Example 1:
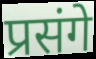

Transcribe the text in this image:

प्रसंगे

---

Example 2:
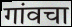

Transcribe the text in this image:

गांवचा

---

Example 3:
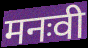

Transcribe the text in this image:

मनःवी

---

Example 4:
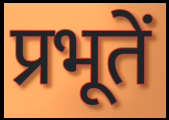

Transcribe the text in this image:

प्रभूतें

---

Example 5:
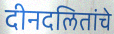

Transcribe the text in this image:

दीनदलितांचे